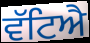
ਵੱਟਿਐ